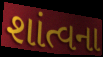
શાંત્વના